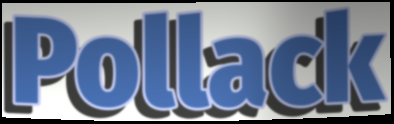
Pollack